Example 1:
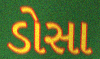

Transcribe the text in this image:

ડોસા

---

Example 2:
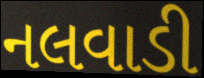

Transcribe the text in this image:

નલવાડી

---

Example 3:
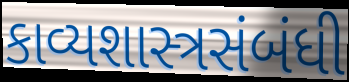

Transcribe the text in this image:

કાવ્યશાસ્ત્રસંબંધી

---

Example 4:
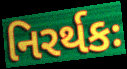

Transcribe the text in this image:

નિરર્થકઃ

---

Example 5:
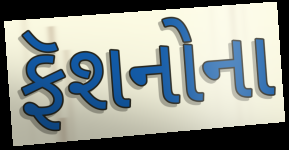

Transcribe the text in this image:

ફૅશનોના